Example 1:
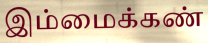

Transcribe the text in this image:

இம்மைக்கண்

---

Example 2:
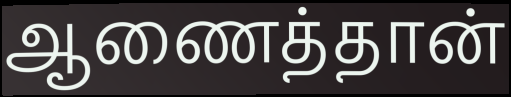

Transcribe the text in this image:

ஆணைத்தான்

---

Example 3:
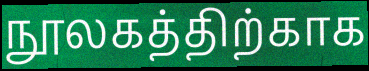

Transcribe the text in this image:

நூலகத்திற்காக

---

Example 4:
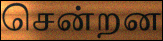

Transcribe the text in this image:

சென்றன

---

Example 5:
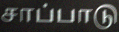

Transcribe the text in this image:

சாப்பாடு